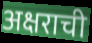
अक्षराची